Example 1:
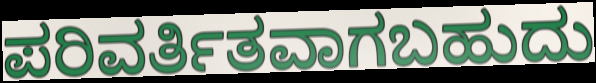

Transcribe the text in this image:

ಪರಿವರ್ತಿತವಾಗಬಹುದು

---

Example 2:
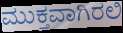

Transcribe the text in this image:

ಮುಕ್ತವಾಗಿರಲಿ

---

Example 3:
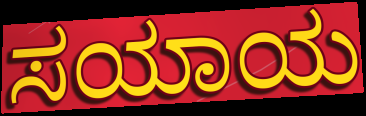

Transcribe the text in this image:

ಸಯಾಯ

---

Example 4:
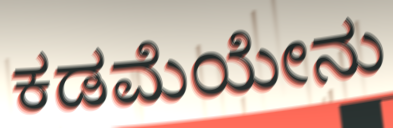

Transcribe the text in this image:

ಕಡಮೆಯೇನು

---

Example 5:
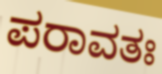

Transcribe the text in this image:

ಪರಾವತಃ